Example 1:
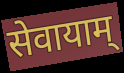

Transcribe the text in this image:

सेवायाम्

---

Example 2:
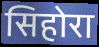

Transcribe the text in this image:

सिहोरा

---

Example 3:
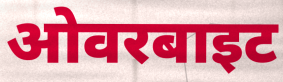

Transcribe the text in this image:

ओवरबाइट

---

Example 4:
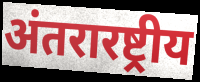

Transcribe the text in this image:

अंतरारष्ट्रीय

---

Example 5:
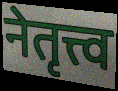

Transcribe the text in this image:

नेतृत्त्व